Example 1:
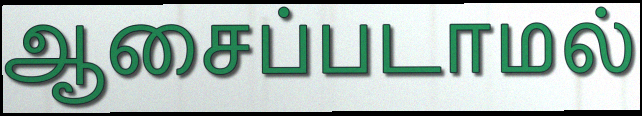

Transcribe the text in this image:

ஆசைப்படாமல்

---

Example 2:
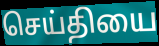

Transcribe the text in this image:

செய்தியை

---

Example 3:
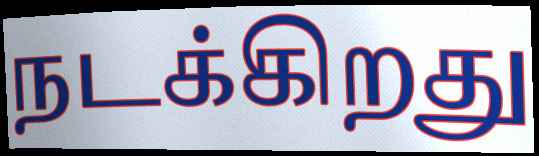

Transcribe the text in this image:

நடக்கிறது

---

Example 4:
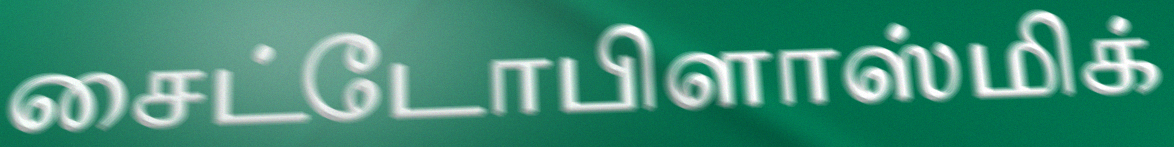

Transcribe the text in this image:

சைட்டோபிளாஸ்மிக்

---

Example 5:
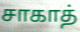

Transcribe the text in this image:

சாகாத்